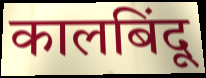
कालबिंदू